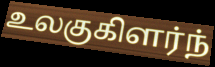
உலகுகிளர்ந்